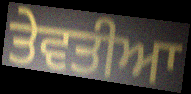
ਤੇਵਤੀਆ